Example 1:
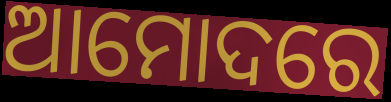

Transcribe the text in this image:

ଆମୋଦରେ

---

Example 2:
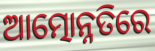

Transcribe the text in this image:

ଆତ୍ମୋନ୍ନତିରେ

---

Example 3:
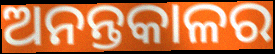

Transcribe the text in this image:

ଅନନ୍ତକାଳର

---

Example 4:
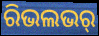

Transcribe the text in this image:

ରିଭଲଭର୍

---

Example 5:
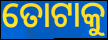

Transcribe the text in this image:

ତୋଟାକୁ